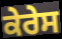
ਕੇਰੇਸ